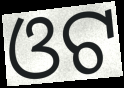
ଓଟ